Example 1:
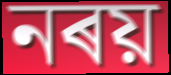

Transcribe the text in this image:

নৰয়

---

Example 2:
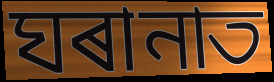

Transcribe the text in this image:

ঘৰানাত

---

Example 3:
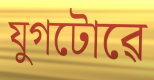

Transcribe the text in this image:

যুগটোৱে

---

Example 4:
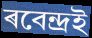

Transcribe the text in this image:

ৰবেন্দ্ৰই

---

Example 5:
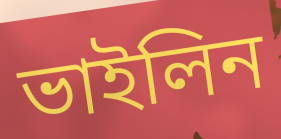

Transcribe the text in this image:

ভাইলিন